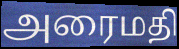
அரைமதி